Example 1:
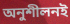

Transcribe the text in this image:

অনুশীলনই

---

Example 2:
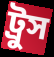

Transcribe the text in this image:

ট্রুস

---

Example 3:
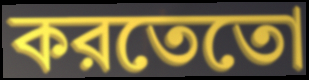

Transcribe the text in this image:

করতেতো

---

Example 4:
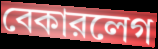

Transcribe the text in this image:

বেকারলেগ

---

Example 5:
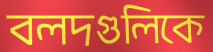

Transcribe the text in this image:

বলদগুলিকে